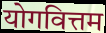
योगवित्तम